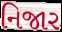
નિજાર